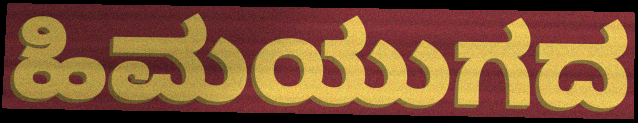
ಹಿಮಯುಗದ